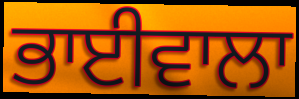
ਭਾਈਵਾਲਾ